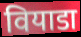
वियाडा